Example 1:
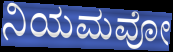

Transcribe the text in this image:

ನಿಯಮವೋ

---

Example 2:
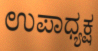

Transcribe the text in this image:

ಉಪಾಧ್ಯಕ್ಷ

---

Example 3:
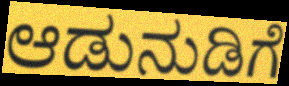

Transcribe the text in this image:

ಆಡುನುಡಿಗೆ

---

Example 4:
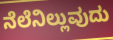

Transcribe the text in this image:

ನೆಲೆನಿಲ್ಲುವುದು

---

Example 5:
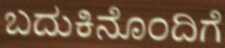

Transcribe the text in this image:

ಬದುಕಿನೊಂದಿಗೆ